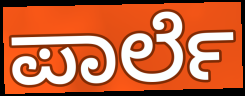
ಪಾರ್ಲೆ